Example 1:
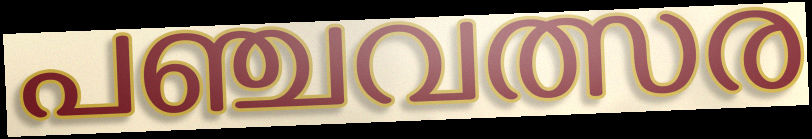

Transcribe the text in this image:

പഞ്ചവത്സര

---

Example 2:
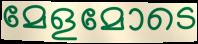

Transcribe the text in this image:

മേളമോടെ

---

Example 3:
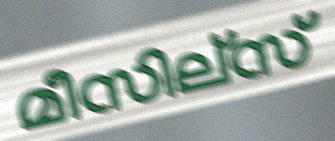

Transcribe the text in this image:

മീസില്സ്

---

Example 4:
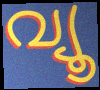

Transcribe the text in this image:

വ്യൂ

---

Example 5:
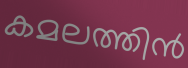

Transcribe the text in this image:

കമലത്തിൻ